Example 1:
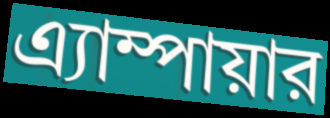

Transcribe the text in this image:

এ্যাম্পায়ার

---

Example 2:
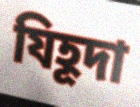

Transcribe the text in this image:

যিহূদা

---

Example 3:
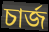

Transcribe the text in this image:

চার্জ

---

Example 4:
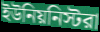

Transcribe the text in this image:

ইউনিয়নিস্টরা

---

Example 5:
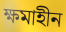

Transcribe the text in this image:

ক্ষমাহীন